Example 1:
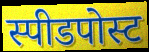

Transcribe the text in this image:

स्पीडपोस्ट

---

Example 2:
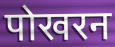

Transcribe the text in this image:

पोखरन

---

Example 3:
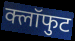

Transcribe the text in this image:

क्लॉफुट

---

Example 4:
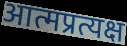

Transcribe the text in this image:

आत्मप्रत्यक्ष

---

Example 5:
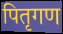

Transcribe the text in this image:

पितृगण